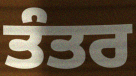
ਤੰਤਰ